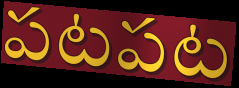
పటపట